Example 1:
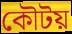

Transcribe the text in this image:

কৌটয়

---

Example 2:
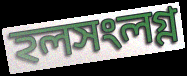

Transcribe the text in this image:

হলসংলগ্ন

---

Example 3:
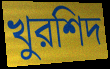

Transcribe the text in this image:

খুরশিদ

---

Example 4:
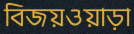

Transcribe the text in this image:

বিজয়ওয়াড়া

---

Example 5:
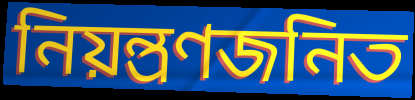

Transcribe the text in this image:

নিয়ন্ত্রণজনিত